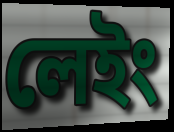
লেইং